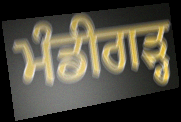
ਮੰਡੀਗੜ੍ਹ